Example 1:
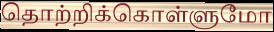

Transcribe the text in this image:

தொற்றிக்கொள்ளுமோ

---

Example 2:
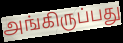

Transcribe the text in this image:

அங்கிருப்பது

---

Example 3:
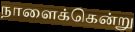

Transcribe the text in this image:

நாளைக்கென்று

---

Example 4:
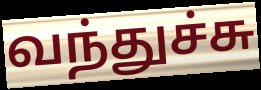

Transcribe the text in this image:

வந்துச்சு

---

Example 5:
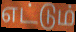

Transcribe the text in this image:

எட்டும்